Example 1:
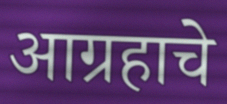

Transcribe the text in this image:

आग्रहाचे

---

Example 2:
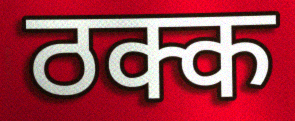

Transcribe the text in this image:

ठक्क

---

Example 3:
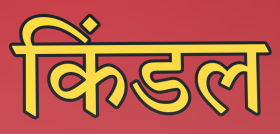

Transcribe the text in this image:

किंडल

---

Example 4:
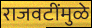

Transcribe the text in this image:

राजवटींमुळे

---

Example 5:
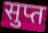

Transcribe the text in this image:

सुप्त